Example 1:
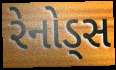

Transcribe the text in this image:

રેનોડ્સ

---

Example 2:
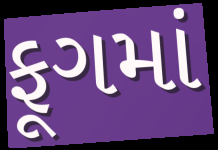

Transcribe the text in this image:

ફૂગમાં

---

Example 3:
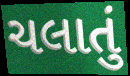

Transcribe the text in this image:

ચલાતું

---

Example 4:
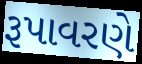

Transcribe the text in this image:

રૂપાવરણે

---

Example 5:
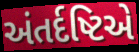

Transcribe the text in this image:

અંતર્દષ્ટિએ